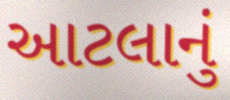
આટલાનું